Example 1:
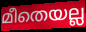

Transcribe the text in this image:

മീതെയല്ല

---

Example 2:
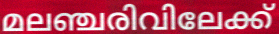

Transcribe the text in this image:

മലഞ്ചരിവിലേക്ക്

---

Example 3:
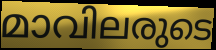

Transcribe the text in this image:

മാവിലരുടെ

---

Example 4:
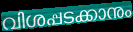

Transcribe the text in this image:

വിശപ്പടക്കാനും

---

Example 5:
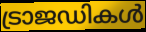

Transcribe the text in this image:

ട്രാജഡികൾ